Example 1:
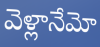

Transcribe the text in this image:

వెళ్లానేమో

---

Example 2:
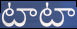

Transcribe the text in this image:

టాటా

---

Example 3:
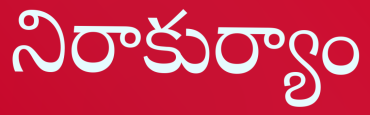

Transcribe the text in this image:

నిరాకుర్యాం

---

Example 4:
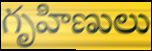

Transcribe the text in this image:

గృహిణులు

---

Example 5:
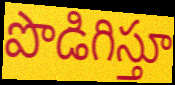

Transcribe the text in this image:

పొడిగిస్తూ